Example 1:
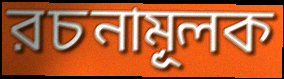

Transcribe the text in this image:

রচনামূলক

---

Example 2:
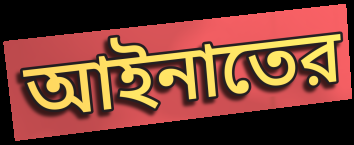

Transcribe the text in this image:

আইনাতের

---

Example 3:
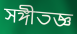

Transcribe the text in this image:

সঙ্গীতজ্ঞ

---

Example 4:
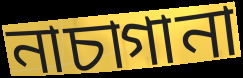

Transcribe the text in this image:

নাচাগানা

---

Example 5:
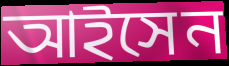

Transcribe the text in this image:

আইসেন